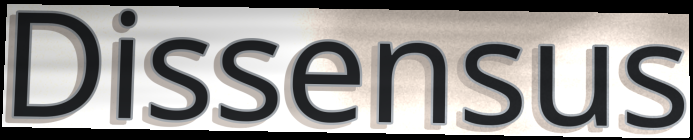
Dissensus